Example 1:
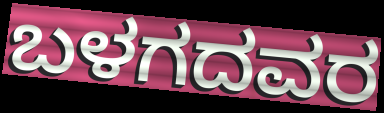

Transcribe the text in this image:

ಬಳಗದವರ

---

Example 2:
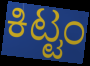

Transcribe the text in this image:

ಕಿಟ್ಟಂ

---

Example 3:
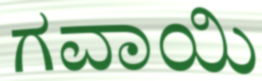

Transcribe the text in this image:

ಗವಾಯಿ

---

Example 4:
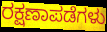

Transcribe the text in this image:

ರಕ್ಷಣಾಪಡೆಗಳು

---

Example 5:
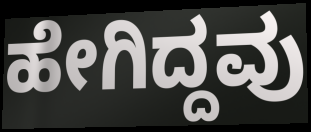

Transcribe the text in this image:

ಹೇಗಿದ್ದವು